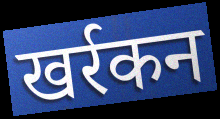
खर्रकन